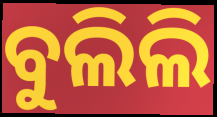
ବୁଲିଲି